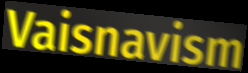
Vaisnavism